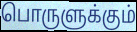
பொருளுக்கும்